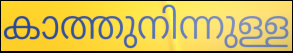
കാത്തുനിന്നുള്ള